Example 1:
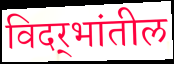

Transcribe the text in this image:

विदर्भांतील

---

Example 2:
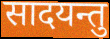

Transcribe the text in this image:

सादयन्तु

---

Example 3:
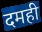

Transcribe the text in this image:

दमही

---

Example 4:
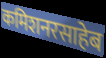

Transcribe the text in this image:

कमिशनरसाहेब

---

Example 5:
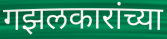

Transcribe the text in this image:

गझलकारांच्या